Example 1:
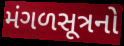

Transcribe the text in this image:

મંગળસૂત્રનો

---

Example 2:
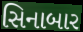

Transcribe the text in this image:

સિનાબાર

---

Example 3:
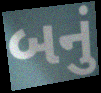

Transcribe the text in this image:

બનું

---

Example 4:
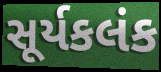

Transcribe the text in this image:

સૂર્યકલંક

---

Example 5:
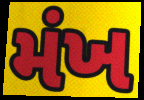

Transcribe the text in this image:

મંખ